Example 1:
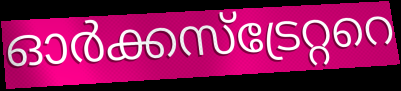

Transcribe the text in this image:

ഓർക്കസ്ട്രേറ്ററെ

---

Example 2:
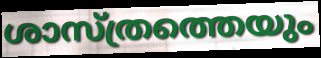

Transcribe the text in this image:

ശാസ്ത്രത്തെയും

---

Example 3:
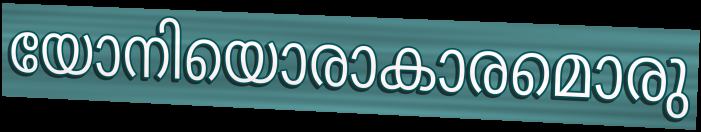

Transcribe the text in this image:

യോനിയൊരാകാരമൊരു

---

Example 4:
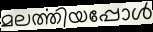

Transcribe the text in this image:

മലൎത്തിയപ്പോൾ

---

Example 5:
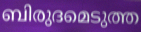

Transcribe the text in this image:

ബിരുദമെടുത്ത